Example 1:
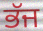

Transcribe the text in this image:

ਭੱਜ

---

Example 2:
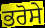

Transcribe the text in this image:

ਭਰੋਸੇ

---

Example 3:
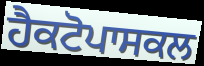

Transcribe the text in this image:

ਹੈਕਟੋਪਾਸਕਲ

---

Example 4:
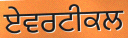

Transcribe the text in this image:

ਏਵਰਟੀਕਲ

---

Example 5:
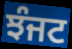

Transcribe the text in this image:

ਝੰਜਟ